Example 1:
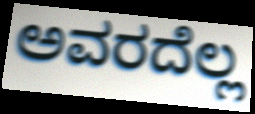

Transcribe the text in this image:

ಅವರದೆಲ್ಲ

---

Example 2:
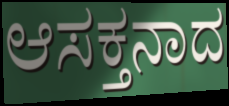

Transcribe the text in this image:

ಆಸಕ್ತನಾದ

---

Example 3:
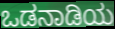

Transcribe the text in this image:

ಒಡನಾಡಿಯ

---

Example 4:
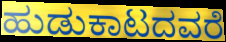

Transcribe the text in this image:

ಹುಡುಕಾಟದವರೆ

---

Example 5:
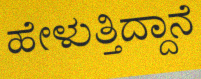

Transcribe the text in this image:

ಹೇಳುತ್ತಿದ್ದಾನೆ